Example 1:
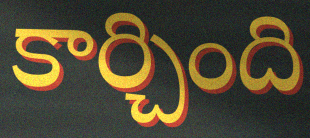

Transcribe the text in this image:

కార్చింది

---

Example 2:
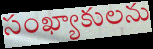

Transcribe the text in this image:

సంఖ్యాకులను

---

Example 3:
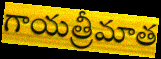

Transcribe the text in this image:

గాయత్రీమాత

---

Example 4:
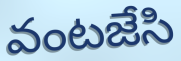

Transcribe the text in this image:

వంటజేసి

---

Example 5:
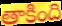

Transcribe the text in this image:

తాకింది